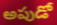
అపుడో